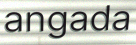
angada